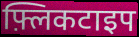
फ़्लिकटाइप